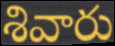
శివారు